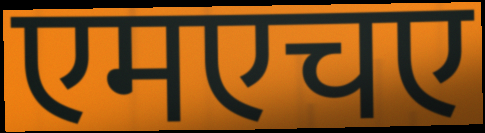
एमएचए